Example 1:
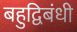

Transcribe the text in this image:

बहुद्विबंधी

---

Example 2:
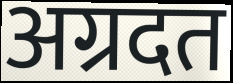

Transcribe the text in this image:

अग्रदत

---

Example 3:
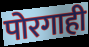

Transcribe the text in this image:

पोरगाही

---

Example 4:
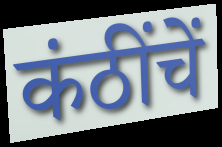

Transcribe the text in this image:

कंठींचें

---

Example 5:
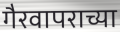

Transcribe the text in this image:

गैरवापराच्या